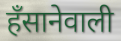
हँसानेवाली